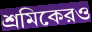
শ্রমিকেরও